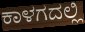
ಕಾಳಗದಲ್ಲಿ